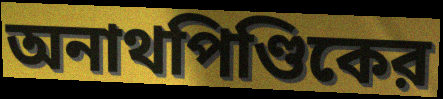
অনাথপিণ্ডিকের